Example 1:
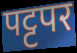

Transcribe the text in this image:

पट्टपर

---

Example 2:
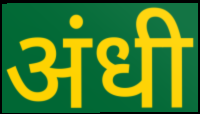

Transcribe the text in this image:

अंधी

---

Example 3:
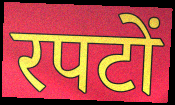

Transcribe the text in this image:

रपटों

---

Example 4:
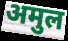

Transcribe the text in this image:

अमुल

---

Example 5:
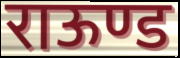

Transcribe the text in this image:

राऊण्ड